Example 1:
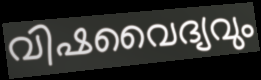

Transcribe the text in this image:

വിഷവൈദ്യവും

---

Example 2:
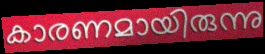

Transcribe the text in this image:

കാരണമായിരുന്നു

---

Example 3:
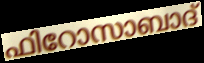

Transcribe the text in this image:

ഫിറോസാബാദ്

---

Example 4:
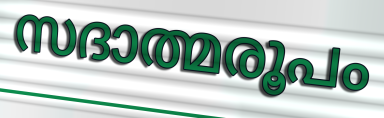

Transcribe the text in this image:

സദാത്മരൂപം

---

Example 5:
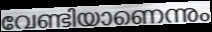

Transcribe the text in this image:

വേണ്ടിയാണെന്നും